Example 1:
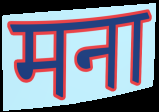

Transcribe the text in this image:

मना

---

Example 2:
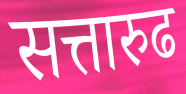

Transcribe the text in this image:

सत्तारुढ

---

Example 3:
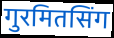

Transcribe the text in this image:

गुरमितसिंग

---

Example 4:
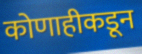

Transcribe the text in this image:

कोणाहीकडून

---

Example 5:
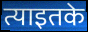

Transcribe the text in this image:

त्याइतके